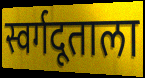
स्वर्गदूताला